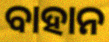
ବାହାନ